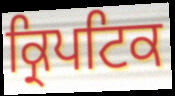
ਕ੍ਰਿਪਟਿਕ